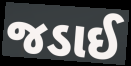
જડાઈ